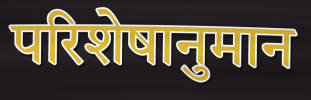
परिशेषानुमान